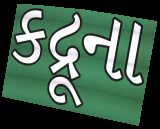
કદ્રૂના